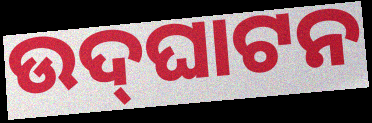
ଉଦ୍‌ଘାଟନ